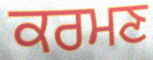
ਕਰਮਣ